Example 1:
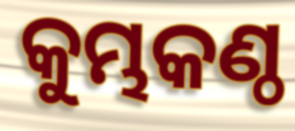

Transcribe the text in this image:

କୁମ୍ଭକଣ୍ଠ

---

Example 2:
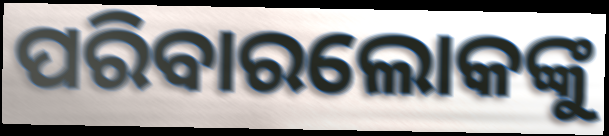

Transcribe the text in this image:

ପରିବାରଲୋକଙ୍କୁ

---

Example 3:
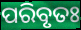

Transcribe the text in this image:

ପରିବୃତଃ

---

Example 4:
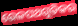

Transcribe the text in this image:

ରେଳପଥଗୁଡିକର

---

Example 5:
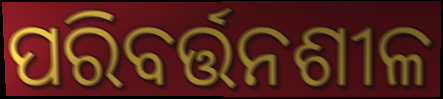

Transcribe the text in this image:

ପରିବର୍ତ୍ତନଶୀଳ